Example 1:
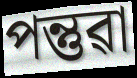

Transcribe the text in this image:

পন্তুৱা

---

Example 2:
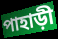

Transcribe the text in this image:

পাহাড়ী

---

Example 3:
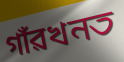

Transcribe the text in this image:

গাঁৱখনত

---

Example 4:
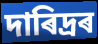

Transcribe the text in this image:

দাৰিদ্ৰৰ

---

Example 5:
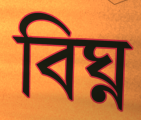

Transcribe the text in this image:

বিঘ্ন